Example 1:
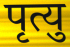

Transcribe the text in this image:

पृत्यु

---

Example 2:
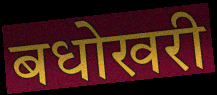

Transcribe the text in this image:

बधोखरी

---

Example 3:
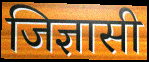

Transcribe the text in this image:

जिज्ञासी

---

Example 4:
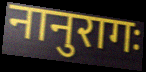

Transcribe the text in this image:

नानुरागः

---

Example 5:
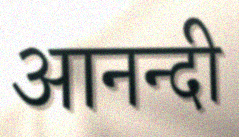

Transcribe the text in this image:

आनन्दी